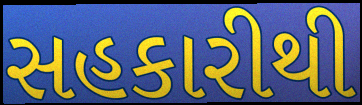
સહકારીથી